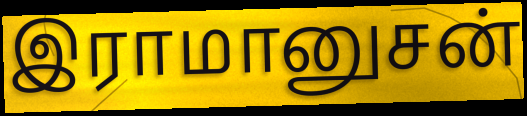
இராமானுசன்